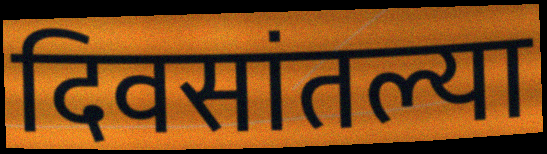
दिवसांतल्या